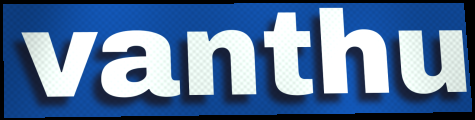
vanthu